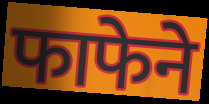
फाफेने